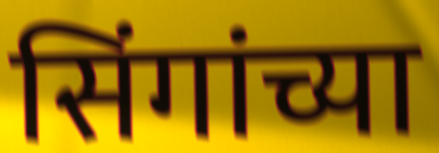
सिंगांच्या